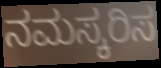
ನಮಸ್ಕರಿಸ